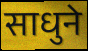
साधुने